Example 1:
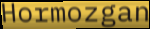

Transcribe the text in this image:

Hormozgan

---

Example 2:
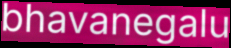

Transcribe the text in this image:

bhavanegalu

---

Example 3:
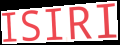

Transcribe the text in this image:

ISIRI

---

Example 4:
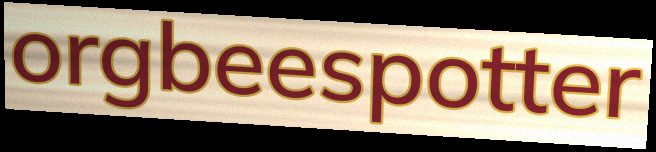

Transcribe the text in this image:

orgbeespotter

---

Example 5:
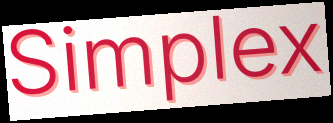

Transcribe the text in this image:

Simplex